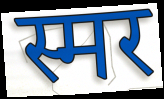
स्मर